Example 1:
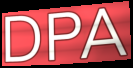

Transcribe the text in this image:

DPA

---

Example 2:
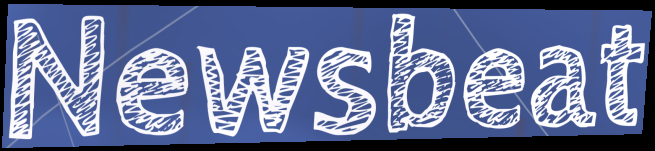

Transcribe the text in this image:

Newsbeat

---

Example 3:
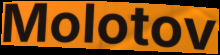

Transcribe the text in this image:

Molotov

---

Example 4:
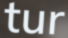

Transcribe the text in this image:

tur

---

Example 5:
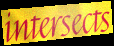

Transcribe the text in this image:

intersects